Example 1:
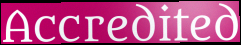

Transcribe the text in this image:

Accredited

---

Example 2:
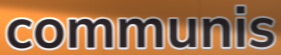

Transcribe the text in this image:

communis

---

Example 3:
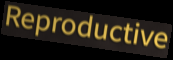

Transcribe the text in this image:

Reproductive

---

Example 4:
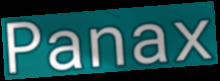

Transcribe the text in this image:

Panax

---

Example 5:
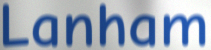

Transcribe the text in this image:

Lanham